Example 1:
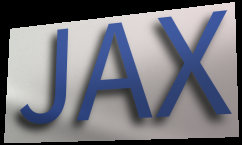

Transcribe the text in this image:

JAX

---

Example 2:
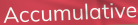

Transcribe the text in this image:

Accumulative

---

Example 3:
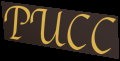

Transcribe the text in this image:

PUCC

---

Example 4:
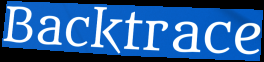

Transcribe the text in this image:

Backtrace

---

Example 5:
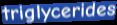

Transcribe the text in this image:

triglycerides